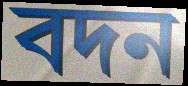
বদন